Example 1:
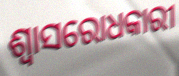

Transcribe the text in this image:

ଶ୍ୱାସରୋଧକାରୀ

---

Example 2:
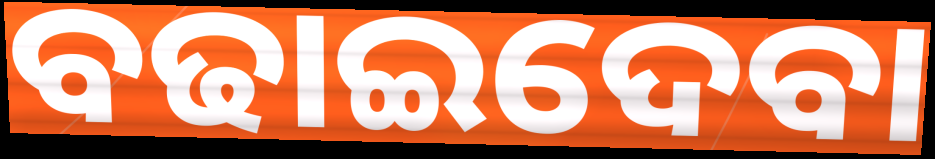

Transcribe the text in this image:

ବଢାଇଦେବା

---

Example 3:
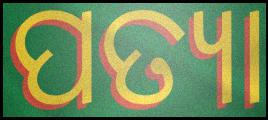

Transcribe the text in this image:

ପତ୍ୟା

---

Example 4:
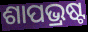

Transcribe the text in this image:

ଶାପଭ୍ରଷ୍ଟ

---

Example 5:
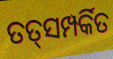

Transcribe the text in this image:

ତତ୍‌ସମ୍ପର୍କିତ